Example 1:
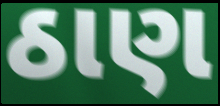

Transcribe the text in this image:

ઠાણ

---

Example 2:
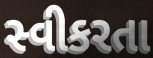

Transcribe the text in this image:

સ્વીકરતા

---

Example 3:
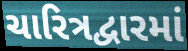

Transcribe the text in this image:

ચારિત્રદ્વારમાં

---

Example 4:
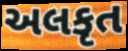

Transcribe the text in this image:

અલકૃત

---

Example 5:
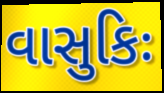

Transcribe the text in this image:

વાસુકિઃ